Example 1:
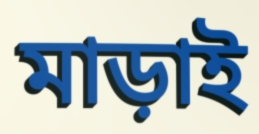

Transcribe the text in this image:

মাড়াই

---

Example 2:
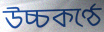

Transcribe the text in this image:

উচ্চকণ্ঠে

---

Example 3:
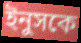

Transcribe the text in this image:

ইনুসকে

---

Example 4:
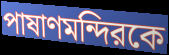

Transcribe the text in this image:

পাষাণমন্দিরকে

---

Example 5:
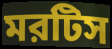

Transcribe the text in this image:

মরটিস